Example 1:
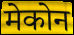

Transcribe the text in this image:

मेकोन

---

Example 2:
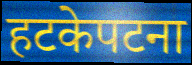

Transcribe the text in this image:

हटकेपटना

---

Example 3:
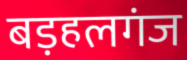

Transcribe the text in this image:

बड़हलगंज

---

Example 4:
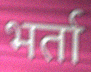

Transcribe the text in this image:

भर्ता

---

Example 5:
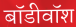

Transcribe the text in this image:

बॉडीवॉश